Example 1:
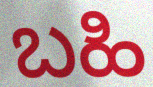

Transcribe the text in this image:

ಬಹಿ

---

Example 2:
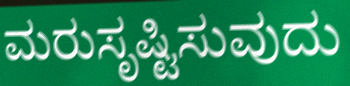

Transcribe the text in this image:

ಮರುಸೃಷ್ಟಿಸುವುದು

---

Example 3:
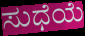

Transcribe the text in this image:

ಸುಧೆಯೆ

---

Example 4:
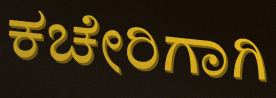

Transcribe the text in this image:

ಕಚೇರಿಗಾಗಿ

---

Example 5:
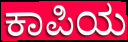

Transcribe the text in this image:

ಕಾಪಿಯ